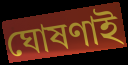
ঘোষণাই